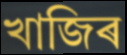
খাজিৰ